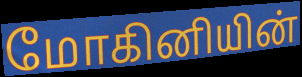
மோகினியின்